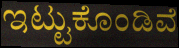
ಇಟ್ಟುಕೊಂಡಿವೆ